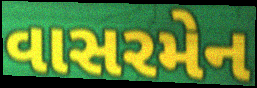
વાસરમેન